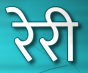
रेरी